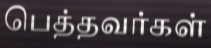
பெத்தவர்கள்